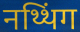
नथ्थिंग